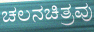
ಚಲನಚಿತ್ರವು